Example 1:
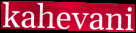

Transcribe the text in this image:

kahevani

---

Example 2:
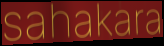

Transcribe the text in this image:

sahakara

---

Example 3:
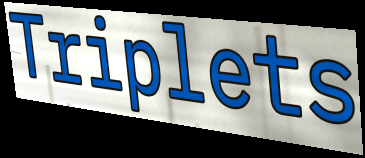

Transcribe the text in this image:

Triplets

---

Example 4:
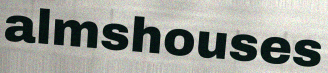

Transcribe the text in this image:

almshouses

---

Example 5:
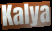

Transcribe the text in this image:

Kalya